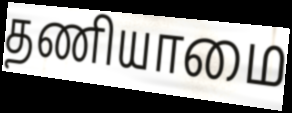
தணியாமை